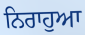
ਨਿਰਾਹੁਆ